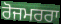
ਰੋਜਮਰਰਾ